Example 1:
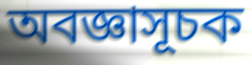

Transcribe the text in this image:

অবজ্ঞাসূচক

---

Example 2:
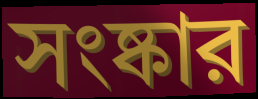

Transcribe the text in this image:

সংষ্কার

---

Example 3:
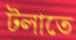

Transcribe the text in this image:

টলাতে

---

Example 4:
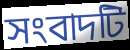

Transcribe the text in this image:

সংবাদটি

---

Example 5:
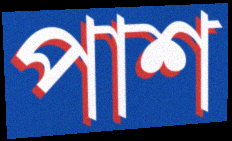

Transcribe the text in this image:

পাশ